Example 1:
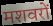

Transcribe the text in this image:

मशवरों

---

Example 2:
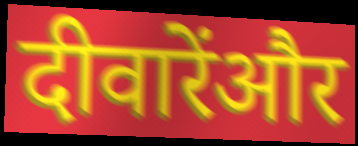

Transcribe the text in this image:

दीवारेंऔर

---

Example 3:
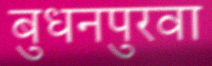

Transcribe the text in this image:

बुधनपुरवा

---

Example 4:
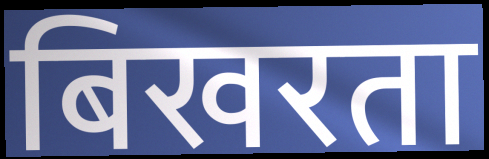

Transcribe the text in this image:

बिखरता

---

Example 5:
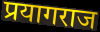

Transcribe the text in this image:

प्रयागराज